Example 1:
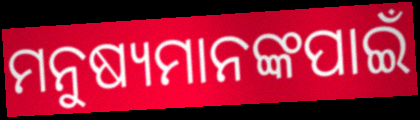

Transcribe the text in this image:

ମନୁଷ୍ୟମାନଙ୍କପାଇଁ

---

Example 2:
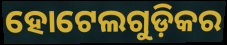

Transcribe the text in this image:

ହୋଟେଲଗୁଡ଼ିକର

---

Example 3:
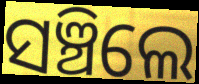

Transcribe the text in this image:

ସଞ୍ଚିଲେ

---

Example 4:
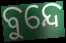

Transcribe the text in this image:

ବୁନ୍ଦେ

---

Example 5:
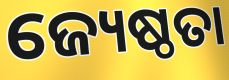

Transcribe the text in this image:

ଜ୍ୟେଷ୍ଠତା